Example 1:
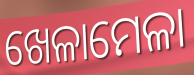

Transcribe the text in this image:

ଖେଳାମେଳା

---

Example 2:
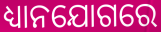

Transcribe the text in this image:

ଧ୍ୟାନଯୋଗରେ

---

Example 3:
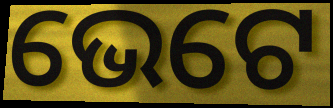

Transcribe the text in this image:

ଭେଟେ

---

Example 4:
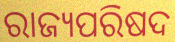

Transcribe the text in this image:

ରାଜ୍ୟପରିଷଦ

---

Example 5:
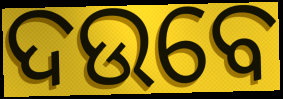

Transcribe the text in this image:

ଦଉବେ